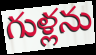
గుళ్లను